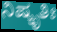
ನಿಷ್ಕೃತಿಃ